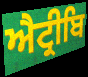
ਐਟ੍ਰੀਬਿ